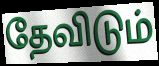
தேவிடும்